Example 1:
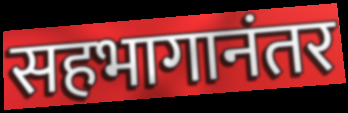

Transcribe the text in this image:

सहभागानंतर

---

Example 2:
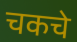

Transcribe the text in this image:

चकचे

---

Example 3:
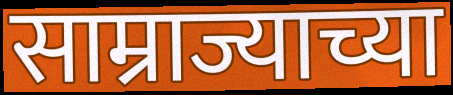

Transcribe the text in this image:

साम्राज्याच्या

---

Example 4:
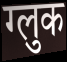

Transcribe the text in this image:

ग्लुक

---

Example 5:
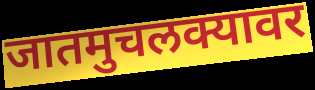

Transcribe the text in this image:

जातमुचलक्यावर